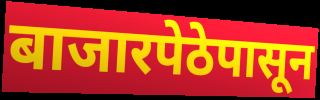
बाजारपेठेपासून